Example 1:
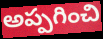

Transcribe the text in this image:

అప్పగించి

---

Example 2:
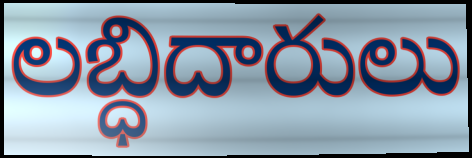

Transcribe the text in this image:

లబ్ధిదారులు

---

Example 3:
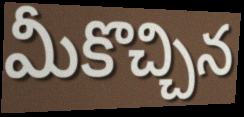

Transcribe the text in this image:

మీకొచ్చిన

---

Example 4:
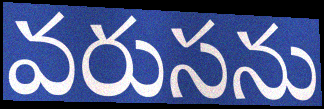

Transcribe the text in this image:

వరుసను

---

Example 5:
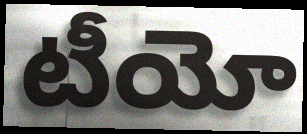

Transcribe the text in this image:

టీయో